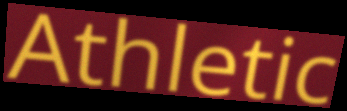
Athletic